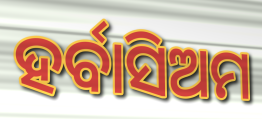
ହର୍ବାସିଅମ